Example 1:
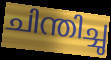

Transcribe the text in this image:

ചിന്തിച്ചു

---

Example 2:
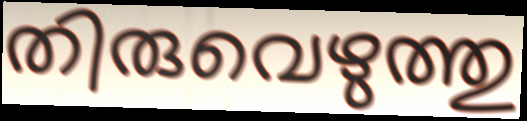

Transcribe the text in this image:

തിരുവെഴുത്തു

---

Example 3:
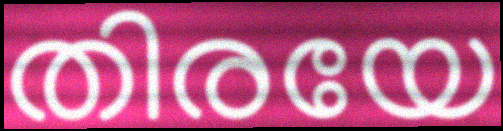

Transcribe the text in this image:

തിരയേ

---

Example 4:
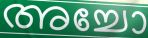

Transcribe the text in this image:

അച്ചോ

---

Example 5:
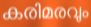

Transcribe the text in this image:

കരിമരവും